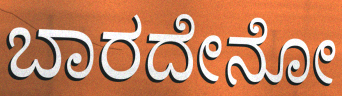
ಬಾರದೇನೋ